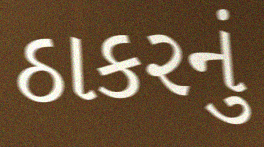
ઠાકરનું